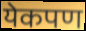
येकपण